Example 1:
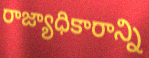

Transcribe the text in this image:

రాజ్యాధికారాన్ని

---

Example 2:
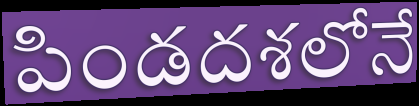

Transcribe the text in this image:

పిండదశలోనే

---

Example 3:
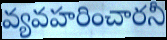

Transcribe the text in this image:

వ్యవహరించారనీ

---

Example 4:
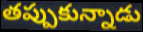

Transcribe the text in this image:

తప్పుకున్నాడు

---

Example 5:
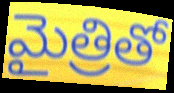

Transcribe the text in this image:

మైత్రితో